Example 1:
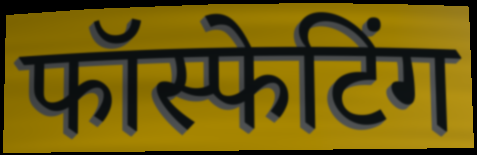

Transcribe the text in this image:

फॉस्फेटिंग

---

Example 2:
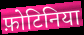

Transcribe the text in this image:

फ़ोटिनिया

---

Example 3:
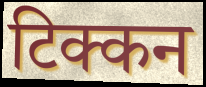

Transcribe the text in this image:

टिक्कन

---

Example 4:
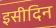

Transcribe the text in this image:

इसीदिन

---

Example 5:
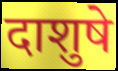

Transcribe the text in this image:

दाशुषे